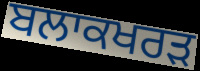
ਬਲਾਕਖਰੜ